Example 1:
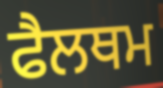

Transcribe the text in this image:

ਫੈਲਥਮ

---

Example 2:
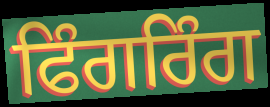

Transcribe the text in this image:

ਫਿੰਗਰਿੰਗ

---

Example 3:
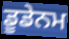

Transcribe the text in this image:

ਡੂਡੇਨਮ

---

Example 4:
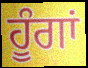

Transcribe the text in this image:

ਹੂੰਗਾਂ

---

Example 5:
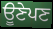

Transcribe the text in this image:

ਊਣੇਪਣ